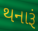
થનારૂં